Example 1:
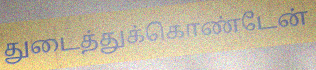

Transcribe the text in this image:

துடைத்துக்கொண்டேன்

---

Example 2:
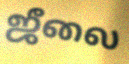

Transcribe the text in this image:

ஜீலை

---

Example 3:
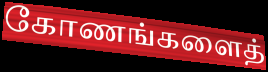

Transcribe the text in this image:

கோணங்களைத்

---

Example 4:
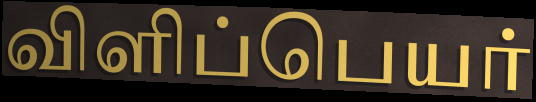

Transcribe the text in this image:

விளிப்பெயர்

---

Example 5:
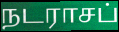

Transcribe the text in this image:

நடராசப்